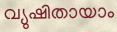
വ്യുഷിതായാം